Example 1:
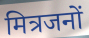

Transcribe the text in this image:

मित्रजनों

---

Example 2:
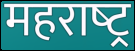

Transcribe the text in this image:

महराष्‍ट्र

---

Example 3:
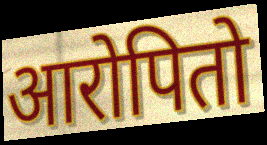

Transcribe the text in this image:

आरोपितो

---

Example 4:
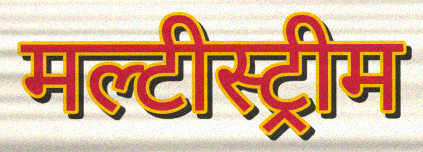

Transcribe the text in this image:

मल्टीस्ट्रीम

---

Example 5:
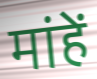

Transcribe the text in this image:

मांहें